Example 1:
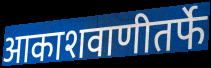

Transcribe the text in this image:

आकाशवाणीतर्फे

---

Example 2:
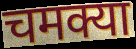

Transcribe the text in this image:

चमक्या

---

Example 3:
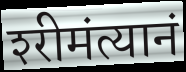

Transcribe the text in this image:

श्रीमंत्यानं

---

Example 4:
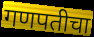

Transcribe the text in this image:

गणपतीचा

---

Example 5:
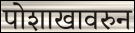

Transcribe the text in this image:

पोशाखावरुन